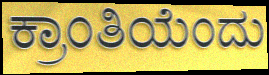
ಕ್ರಾಂತಿಯೆಂದು